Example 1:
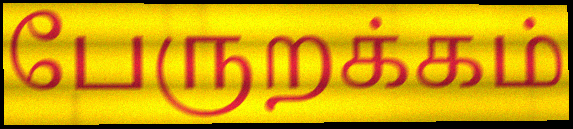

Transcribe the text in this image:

பேருறக்கம்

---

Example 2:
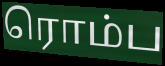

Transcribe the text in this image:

ரொம்ப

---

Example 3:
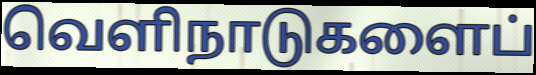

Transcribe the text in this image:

வெளிநாடுகளைப்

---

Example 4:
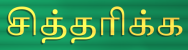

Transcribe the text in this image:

சித்தரிக்க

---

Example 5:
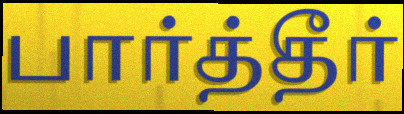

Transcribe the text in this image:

பார்த்தீர்